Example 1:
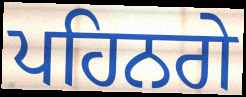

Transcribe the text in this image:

ਪਹਿਨਗੇ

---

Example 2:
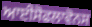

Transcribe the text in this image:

ਆਈਸੋਫਲਾਵੋਨਸ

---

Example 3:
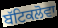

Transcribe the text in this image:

ਬੱਟਿਕਲੋਵਾ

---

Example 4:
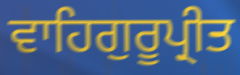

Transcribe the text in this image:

ਵਾਹਿਗੁਰੂਪ੍ਰੀਤ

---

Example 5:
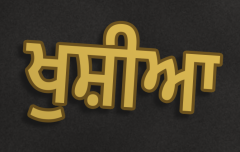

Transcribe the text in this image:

ਖੁਸ਼ੀਆ